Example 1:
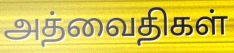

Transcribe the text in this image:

அத்வைதிகள்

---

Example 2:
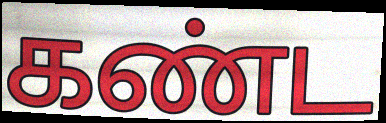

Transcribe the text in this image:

கண்ட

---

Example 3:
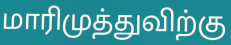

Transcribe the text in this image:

மாரிமுத்துவிற்கு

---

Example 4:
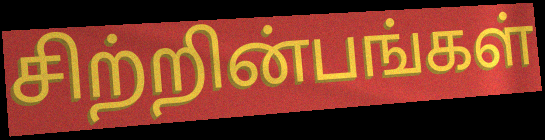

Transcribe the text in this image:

சிற்றின்பங்கள்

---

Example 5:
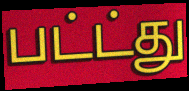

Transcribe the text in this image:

பட்ட்து